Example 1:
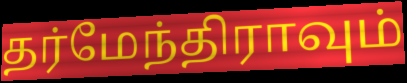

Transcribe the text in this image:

தர்மேந்திராவும்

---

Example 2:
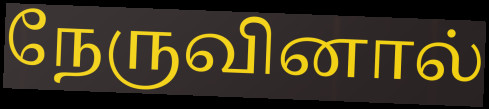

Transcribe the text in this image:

நேருவினால்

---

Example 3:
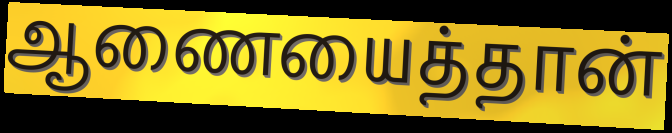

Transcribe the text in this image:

ஆணையைத்தான்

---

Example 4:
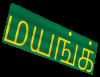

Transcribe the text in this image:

மயங்க்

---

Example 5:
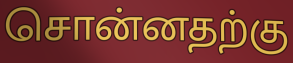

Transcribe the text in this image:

சொன்னதற்கு